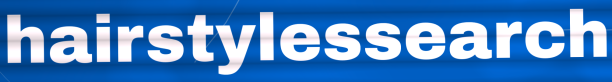
hairstylessearch